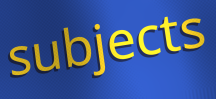
subjects